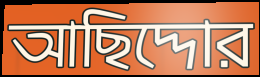
আছিদ্দোর